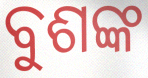
ବୁଶଙ୍କ